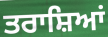
ਤਰਾਸ਼ਿਆਂ